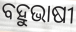
ବହୁଭାଷୀ